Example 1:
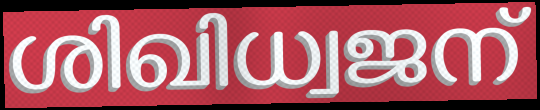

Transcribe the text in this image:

ശിഖിധ്വജന്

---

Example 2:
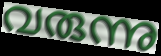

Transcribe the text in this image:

വരുന്നു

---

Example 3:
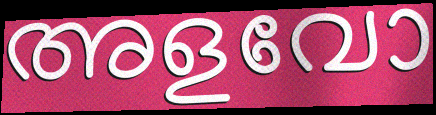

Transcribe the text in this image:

അളവോ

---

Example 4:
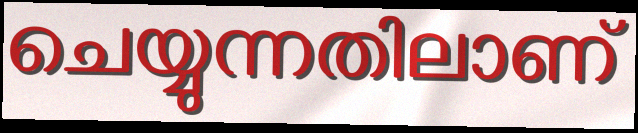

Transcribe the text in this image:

ചെയ്യുന്നതിലാണ്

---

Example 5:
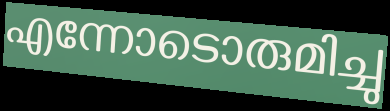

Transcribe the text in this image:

എന്നോടൊരുമിച്ചു